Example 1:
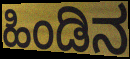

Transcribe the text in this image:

ಹಿಂಡಿನ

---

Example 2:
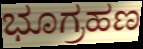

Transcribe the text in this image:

ಭೂಗ್ರಹಣ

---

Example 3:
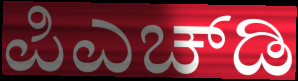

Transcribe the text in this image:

ಪಿಎಚ್‌ಡಿ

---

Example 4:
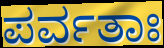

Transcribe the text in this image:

ಪರ್ವತಾಃ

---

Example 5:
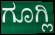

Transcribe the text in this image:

ಗೂಗ್ಲಿ